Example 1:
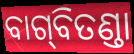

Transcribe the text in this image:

ବାଗ୍‍ବିତଣ୍ଡା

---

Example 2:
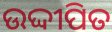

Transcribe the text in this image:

ଉଦ୍ଦୀପିତ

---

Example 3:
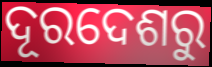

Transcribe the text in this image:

ଦୂରଦେଶରୁ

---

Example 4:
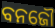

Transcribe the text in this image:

ବନଜୌ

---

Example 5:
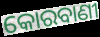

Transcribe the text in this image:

କୋରବାଣୀ